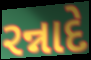
રન્નાદે